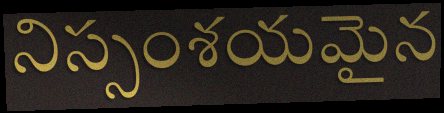
నిస్సంశయమైన